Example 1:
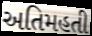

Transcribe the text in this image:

અતિમહતી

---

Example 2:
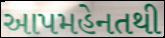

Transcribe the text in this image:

આપમહેનતથી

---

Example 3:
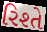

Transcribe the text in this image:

રિશ્તે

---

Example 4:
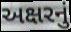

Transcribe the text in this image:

અક્ષરનું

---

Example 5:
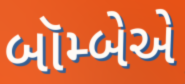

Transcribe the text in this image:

બૉમ્બેએ